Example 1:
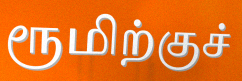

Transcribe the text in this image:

ரூமிற்குச்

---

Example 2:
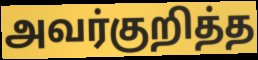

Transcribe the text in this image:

அவர்குறித்த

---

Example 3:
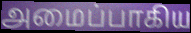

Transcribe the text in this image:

அமைப்பாகிய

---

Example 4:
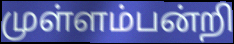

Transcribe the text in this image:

முள்ளம்பன்றி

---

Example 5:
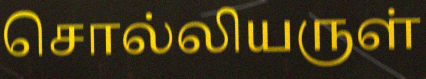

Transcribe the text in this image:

சொல்லியருள்